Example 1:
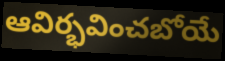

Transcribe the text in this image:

ఆవిర్భవించబోయే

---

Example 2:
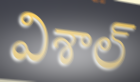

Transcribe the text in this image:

విశాల్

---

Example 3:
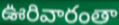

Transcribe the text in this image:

ఊరివారంతా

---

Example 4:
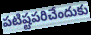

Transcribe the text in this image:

పటిష్టపరిచేందుకు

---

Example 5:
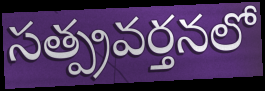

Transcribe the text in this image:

సత్ప్రవర్తనలో